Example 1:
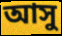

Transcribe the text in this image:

আসু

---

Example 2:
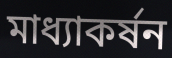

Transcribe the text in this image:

মাধ্যাকর্ষন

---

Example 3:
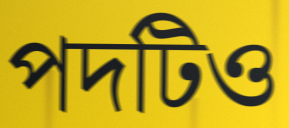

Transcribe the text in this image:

পদটিও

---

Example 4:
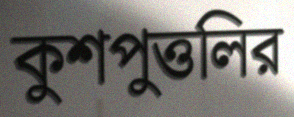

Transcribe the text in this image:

কুশপুত্তলির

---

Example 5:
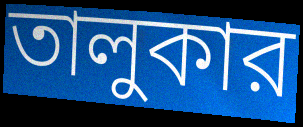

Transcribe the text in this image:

তালুকার